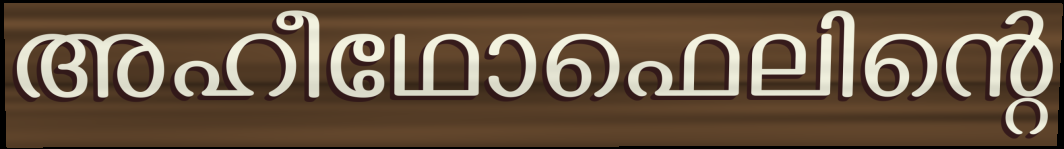
അഹീഥോഫെലിന്റെ